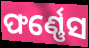
ଫର୍ଣ୍ଣେସ